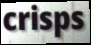
crisps